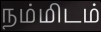
நம்மிடம்